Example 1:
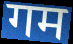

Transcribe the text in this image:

गम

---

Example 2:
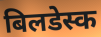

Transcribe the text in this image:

बिलडेस्क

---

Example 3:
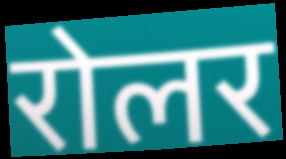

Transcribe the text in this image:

रोलर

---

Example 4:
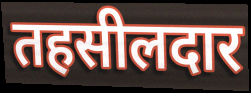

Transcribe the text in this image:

तहसीलदार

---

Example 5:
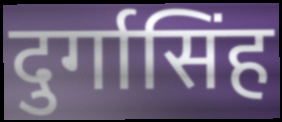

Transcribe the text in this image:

दुर्गासिंह